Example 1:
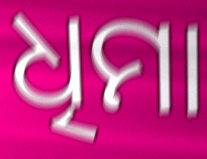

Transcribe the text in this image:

ଧିମା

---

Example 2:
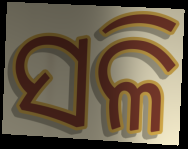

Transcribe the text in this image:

ସଳି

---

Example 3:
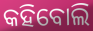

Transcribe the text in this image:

କହିବୋଲି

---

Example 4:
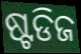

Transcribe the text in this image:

ଷ୍ଟଡିଜ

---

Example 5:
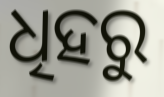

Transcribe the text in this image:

ଧିହରୁ